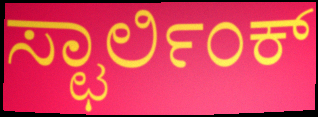
ಸ್ಟಾರ್ಲಿಂಕ್